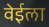
वेईला